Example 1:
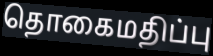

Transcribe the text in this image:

தொகைமதிப்பு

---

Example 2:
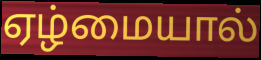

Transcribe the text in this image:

ஏழ்மையால்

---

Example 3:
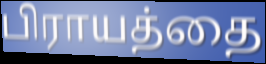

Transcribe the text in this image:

பிராயத்தை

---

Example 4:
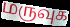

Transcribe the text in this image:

மருவுக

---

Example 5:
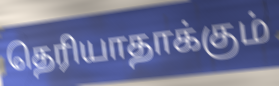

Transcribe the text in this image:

தெரியாதாக்கும்